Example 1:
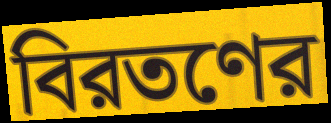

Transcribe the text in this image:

বিরতণের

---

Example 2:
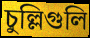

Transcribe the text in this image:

চুল্লিগুলি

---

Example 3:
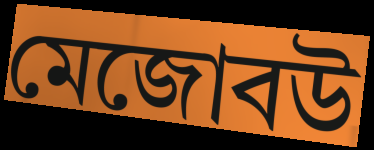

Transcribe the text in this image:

মেজোবউ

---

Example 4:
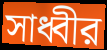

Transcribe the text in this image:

সাধ্বীর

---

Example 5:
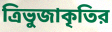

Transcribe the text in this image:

ত্রিভুজাকৃতির